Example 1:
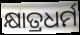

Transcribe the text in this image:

କ୍ଷାତ୍ରଧର୍ମ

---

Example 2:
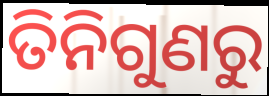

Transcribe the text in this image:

ତିନିଗୁଣରୁ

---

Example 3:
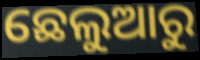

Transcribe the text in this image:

ଛେଲୁଆରୁ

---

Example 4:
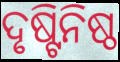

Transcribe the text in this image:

ଦୃଷ୍ଟିନିଷ୍ଠ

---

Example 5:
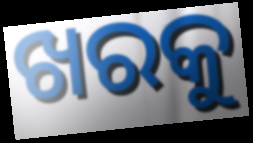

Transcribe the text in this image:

ଖରକୁ